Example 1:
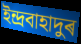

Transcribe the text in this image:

ইন্দ্ৰবাহাদুৰ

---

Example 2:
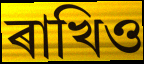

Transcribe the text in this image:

ৰাখিও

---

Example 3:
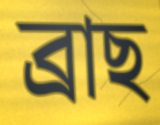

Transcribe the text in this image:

ব্ৰাছ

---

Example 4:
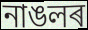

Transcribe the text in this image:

নাঙলৰ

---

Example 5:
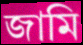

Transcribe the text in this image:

জামি